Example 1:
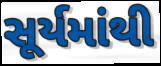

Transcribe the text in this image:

સૂર્યમાંથી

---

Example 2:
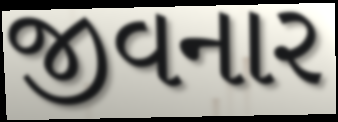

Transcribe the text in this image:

જીવનાર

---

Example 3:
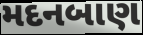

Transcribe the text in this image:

મદનબાણ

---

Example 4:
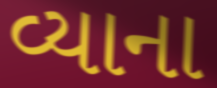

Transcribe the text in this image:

વ્યાના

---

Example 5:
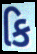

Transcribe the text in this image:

કિ